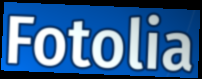
Fotolia